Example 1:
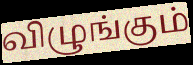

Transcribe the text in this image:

விழுங்கும்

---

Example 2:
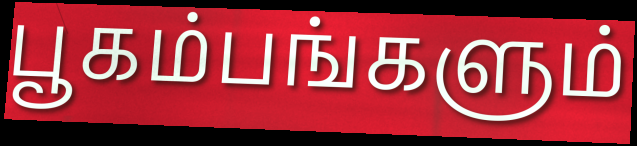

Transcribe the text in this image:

பூகம்பங்களும்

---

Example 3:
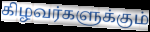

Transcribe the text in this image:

கிழவர்களுக்கும்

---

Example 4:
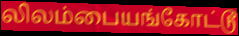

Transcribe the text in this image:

லிலம்பையங்கோட்டூ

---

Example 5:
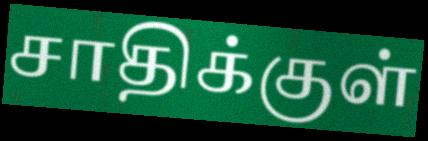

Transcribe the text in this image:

சாதிக்குள்